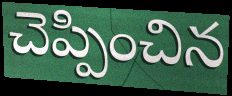
చెప్పించిన